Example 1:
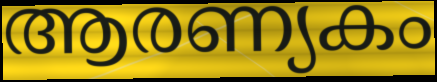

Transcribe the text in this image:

ആരണ്യകം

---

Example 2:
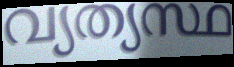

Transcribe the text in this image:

വ്യത്യസ്ഥ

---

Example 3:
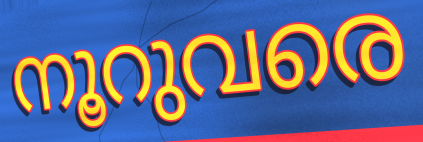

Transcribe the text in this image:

നൂറുവരെ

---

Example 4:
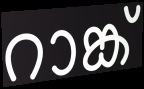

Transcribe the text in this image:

റാങ്ക്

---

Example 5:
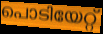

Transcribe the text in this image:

പൊടിയേറ്റ്